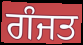
ਗੰਜਤ